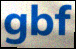
gbf